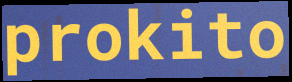
prokito